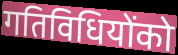
गतिविधियोंको